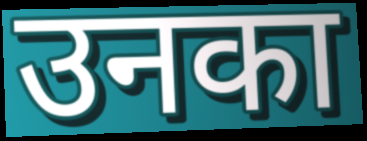
उनका